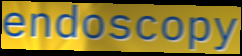
endoscopy